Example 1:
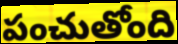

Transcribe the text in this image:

పంచుతోంది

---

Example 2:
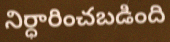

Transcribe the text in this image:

నిర్ధారించబడింది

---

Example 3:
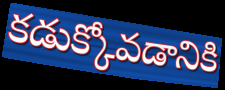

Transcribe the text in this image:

కడుక్కోవడానికి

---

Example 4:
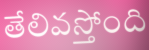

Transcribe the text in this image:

తేలివస్తోంది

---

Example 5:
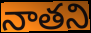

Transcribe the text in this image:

నాతని